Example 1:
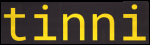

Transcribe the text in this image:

tinni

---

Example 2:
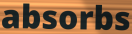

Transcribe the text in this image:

absorbs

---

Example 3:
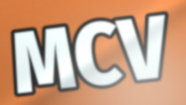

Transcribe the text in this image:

MCV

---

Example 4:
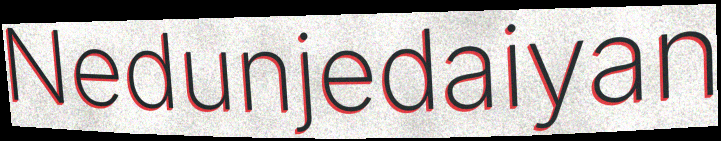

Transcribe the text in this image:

Nedunjedaiyan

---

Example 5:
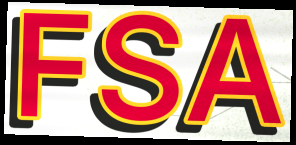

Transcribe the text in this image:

FSA